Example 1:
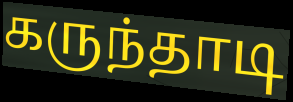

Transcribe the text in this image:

கருந்தாடி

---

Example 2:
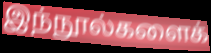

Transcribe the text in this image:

இந்நூல்களைக்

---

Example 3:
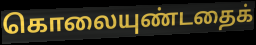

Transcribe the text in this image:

கொலையுண்டதைக்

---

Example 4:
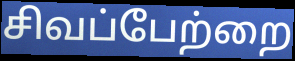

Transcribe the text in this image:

சிவப்பேற்றை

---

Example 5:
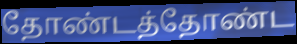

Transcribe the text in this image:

தோண்டத்தோண்ட